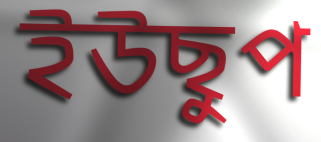
ইউছুপ